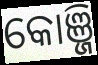
କୋଞ୍ଜି